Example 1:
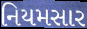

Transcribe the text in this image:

નિયમસાર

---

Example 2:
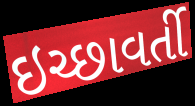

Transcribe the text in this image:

ઇચ્છાવર્તી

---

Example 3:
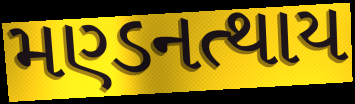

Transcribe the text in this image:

મણ્ડનત્થાય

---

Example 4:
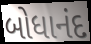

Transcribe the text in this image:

બોધાનંદ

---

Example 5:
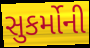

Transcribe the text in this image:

સુકર્મોની